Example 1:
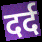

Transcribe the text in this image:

दर्द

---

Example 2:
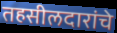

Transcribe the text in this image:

तहसीलदारांचे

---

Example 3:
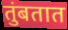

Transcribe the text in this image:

तुंबतात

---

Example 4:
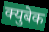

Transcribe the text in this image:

क्युबेक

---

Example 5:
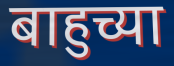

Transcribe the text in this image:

बाहुच्या